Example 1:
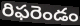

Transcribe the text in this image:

రిఫరెండం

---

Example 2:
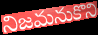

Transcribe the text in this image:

నిజమనుకొని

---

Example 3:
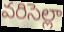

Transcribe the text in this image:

వరిసెల్లా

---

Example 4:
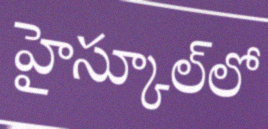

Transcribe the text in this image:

హైస్కూల్‌లో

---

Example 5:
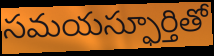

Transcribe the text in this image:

సమయస్ఫూర్తితో